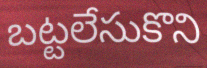
బట్టలేసుకొని